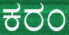
ಕರಂ